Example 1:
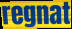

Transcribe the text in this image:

regnat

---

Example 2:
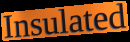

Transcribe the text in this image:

Insulated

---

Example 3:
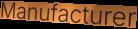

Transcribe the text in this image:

Manufacturer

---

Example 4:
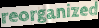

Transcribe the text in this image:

reorganized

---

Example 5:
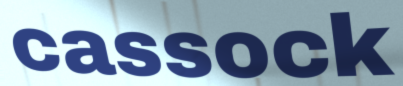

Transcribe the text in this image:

cassock